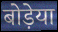
बोड़ेया